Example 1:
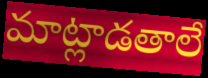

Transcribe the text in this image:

మాట్లాడతాలే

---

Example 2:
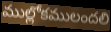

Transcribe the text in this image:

ముల్లోకములందలి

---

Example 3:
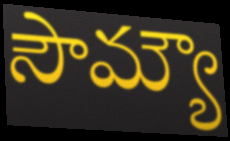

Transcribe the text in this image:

సౌమ్యౌ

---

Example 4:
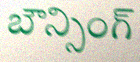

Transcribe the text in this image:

బౌన్సింగ్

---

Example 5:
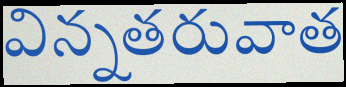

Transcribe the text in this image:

విన్నతరువాత